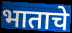
भाताचे